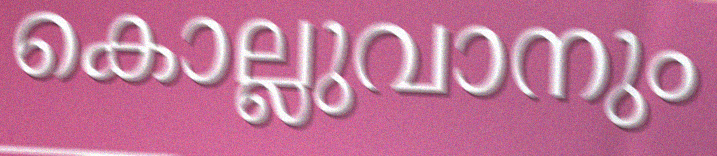
കൊല്ലുവാനും